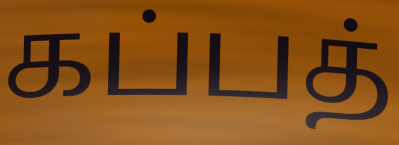
கப்பத்